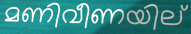
മണിവീണയില്